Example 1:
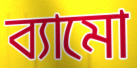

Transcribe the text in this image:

ব্যামো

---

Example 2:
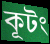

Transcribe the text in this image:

কূটং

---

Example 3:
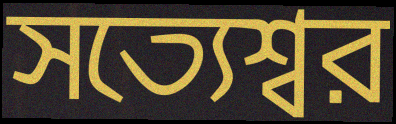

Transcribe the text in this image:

সত্যেশ্বর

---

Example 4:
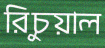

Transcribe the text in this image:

রিচুয়াল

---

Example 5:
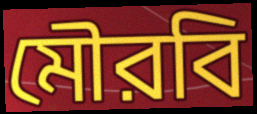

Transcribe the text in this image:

মৌরবি